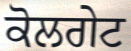
ਕੋਲਗੇਟ